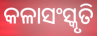
କଳାସଂସ୍କୃତି